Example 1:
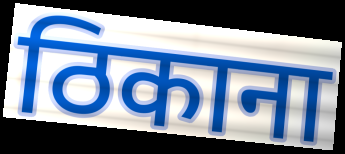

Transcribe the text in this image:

ठिकाना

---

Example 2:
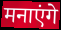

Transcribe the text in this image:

मनाएंगे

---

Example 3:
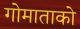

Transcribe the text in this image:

गोमाताको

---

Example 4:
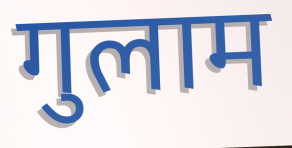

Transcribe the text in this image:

गुलाम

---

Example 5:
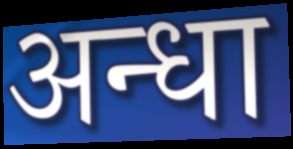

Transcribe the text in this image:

अन्धा